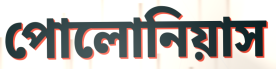
পোলোনিয়াস